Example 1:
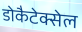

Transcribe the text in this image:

डोकैटेक्सेल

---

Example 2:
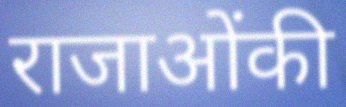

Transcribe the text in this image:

राजाओंकी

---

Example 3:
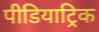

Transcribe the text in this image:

पीडियाट्रिक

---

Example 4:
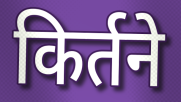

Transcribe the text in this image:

किर्तने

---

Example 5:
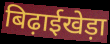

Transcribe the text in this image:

बिढ़ाईखेड़ा